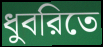
ধুবরিতে